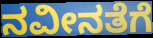
ನವೀನತೆಗೆ